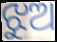
ଝୁଅ